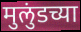
मुलुंडच्या